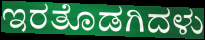
ಇರತೊಡಗಿದಳು